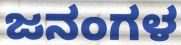
ಜನಂಗಳ